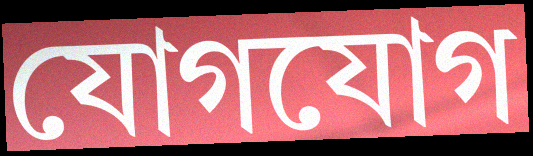
যোগযোগ